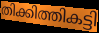
തിക്കിത്തികട്ടി